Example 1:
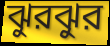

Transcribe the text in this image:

ঝুরঝুর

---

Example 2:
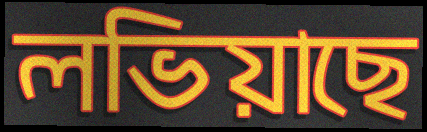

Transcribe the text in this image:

লভিয়াছে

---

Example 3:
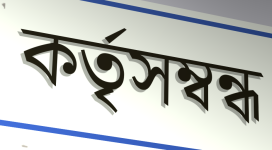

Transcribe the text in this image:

কর্তৃসম্বন্ধ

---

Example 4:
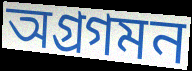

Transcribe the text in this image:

অগ্রগমন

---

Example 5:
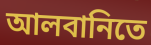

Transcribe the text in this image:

আলবানিতে